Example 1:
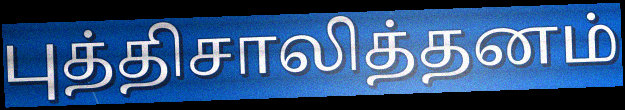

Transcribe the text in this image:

புத்திசாலித்தனம்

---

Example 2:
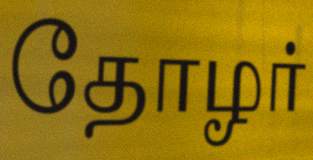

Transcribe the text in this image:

தோழர்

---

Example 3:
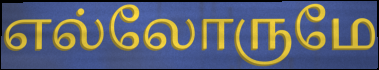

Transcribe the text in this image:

எல்லோருமே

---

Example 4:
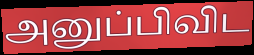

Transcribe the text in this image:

அனுப்பிவிட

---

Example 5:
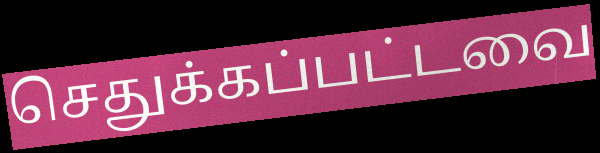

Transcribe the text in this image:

செதுக்கப்பட்டவை